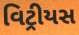
વિટ્રીયસ